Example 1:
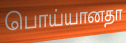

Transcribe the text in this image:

பொய்யானதா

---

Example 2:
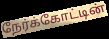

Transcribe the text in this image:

நேர்க்கோட்டின்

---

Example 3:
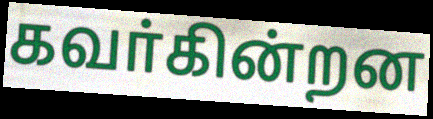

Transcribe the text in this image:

கவர்கின்றன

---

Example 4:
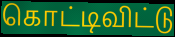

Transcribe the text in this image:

கொட்டிவிட்டு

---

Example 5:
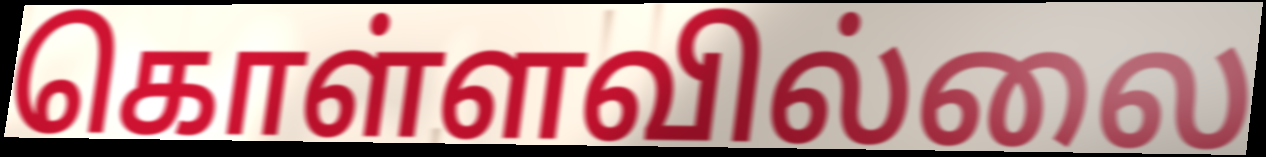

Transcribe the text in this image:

கொள்ளவில்லை